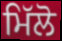
ਮਿੱਲੋ